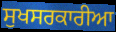
ਸੁਖਸਰਕਾਰੀਆ